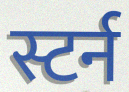
स्टर्न